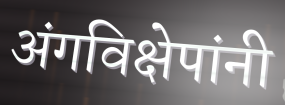
अंगविक्षेपांनी